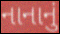
નાનાનું